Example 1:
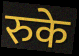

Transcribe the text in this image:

रुके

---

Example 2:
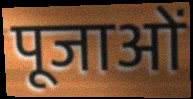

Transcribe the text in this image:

पूजाओं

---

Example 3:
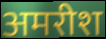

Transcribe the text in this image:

अमरीश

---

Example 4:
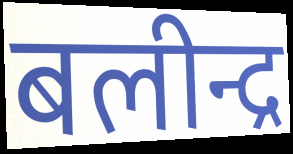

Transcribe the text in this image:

बलीन्द्र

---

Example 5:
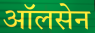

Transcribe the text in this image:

ऑलसेन